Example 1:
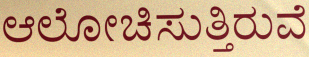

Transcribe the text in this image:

ಆಲೋಚಿಸುತ್ತಿರುವೆ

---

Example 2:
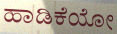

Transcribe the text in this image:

ಹಾಡಿಕೆಯೋ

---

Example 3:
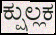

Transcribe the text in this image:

ಕ್ಷುಲ್ಲಕ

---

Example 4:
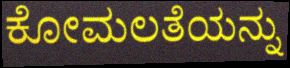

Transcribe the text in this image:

ಕೋಮಲತೆಯನ್ನು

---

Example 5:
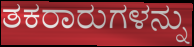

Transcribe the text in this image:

ತಕರಾರುಗಳನ್ನು